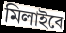
মিলাইবে